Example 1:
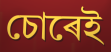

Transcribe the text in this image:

চোৰেই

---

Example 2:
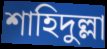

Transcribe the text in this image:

শাহিদুল্লা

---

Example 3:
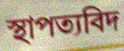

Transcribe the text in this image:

স্থাপত্যবিদ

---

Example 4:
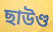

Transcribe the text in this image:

ছাউণ্ড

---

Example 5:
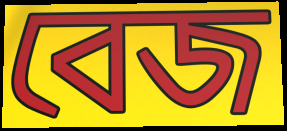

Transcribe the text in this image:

বেজ